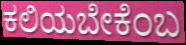
ಕಲಿಯಬೇಕೆಂಬ